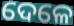
ଦେଳେ